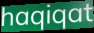
haqiqat